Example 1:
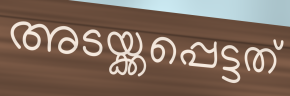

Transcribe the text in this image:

അടയ്ക്കപ്പെട്ടത്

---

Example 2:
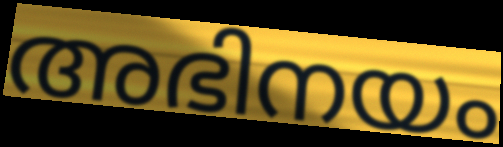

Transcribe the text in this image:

അഭിനയം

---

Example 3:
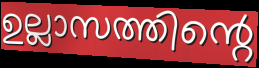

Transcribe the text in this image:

ഉല്ലാസത്തിന്റെ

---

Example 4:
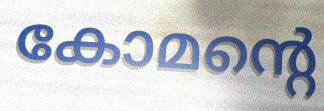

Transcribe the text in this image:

കോമന്റെ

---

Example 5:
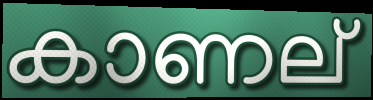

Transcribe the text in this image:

കാണല്